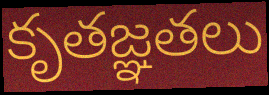
కృతజ్ఞతలు